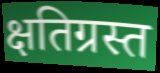
क्षतिग्रस्त